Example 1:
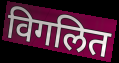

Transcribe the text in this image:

विगलित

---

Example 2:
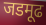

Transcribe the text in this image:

जडमूढ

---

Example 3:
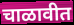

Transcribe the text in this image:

चाळावीत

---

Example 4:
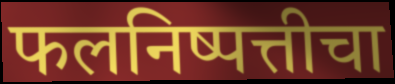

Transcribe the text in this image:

फलनिष्पत्तीचा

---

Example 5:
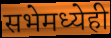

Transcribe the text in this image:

सभेमध्येही